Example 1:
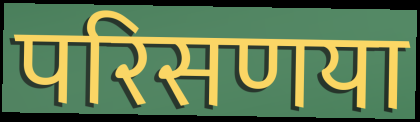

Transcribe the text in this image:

परिसणया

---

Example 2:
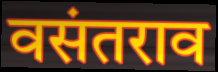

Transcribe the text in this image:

वसंतराव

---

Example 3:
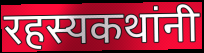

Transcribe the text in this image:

रहस्यकथांनी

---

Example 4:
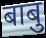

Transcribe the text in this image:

बाबु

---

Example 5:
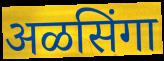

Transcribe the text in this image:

अळसिंगा